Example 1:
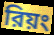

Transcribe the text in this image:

রিয়ং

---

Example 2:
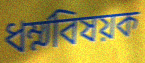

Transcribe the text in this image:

ধর্ম্মবিষয়ক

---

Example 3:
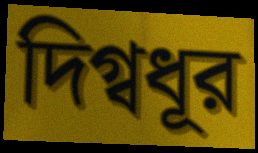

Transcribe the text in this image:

দিগ্বধূর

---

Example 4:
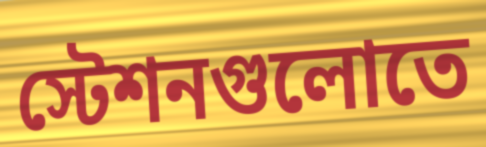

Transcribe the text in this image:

স্টেশনগুলোতে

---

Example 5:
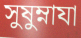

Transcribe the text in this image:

সুষুম্নাযা